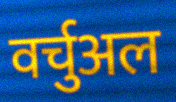
वर्चुअल